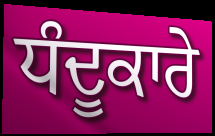
ਧੰਦੂਕਾਰੇ